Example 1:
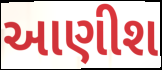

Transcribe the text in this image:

આણીશ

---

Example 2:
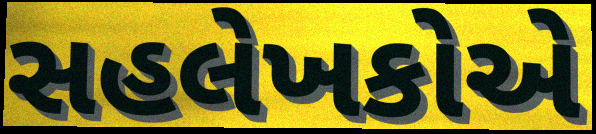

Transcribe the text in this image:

સહલેખકોએ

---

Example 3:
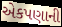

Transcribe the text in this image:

એકપણાની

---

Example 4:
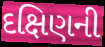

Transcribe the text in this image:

દક્ષિણની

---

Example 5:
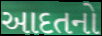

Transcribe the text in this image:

આદતનો